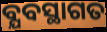
ବ୍ଯବସ୍ଥାଗତ